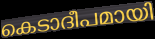
കെടാദീപമായി